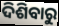
ଦିଶିବାରୁ